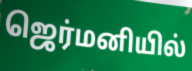
ஜெர்மனியில்